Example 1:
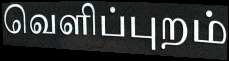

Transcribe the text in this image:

வெளிப்புறம்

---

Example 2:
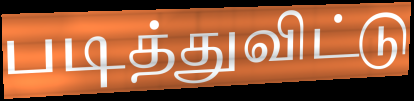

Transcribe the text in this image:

படித்துவிட்டு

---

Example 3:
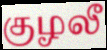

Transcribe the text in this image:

குழலீ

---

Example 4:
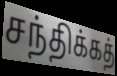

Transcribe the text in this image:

சந்திக்கத்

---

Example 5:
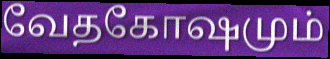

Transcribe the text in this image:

வேதகோஷமும்